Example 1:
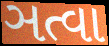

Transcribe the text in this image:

ઞત્વા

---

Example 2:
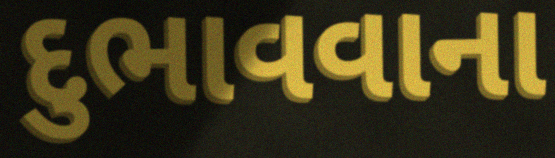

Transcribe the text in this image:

દુભાવવાના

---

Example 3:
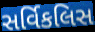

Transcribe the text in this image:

સર્વિકલિસ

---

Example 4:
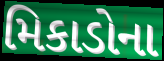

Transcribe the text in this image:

મિકાડોના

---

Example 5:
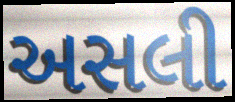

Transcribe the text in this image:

અસલી